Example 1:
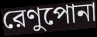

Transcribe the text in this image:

রেণুপোনা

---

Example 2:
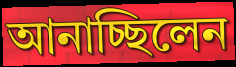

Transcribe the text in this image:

আনাচ্ছিলেন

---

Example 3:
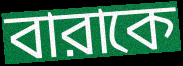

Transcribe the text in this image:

বারাকে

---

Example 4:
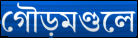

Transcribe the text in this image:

গৌড়মণ্ডলে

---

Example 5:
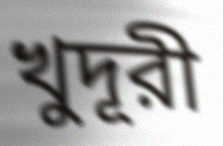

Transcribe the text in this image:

খুদূরী